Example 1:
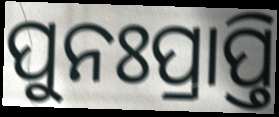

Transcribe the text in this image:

ପୁନଃପ୍ରାପ୍ତି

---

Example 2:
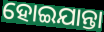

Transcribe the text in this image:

ହୋଇଯାନ୍ତା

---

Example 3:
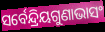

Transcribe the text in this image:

ସର୍ବେନ୍ଦ୍ରିୟଗୁଣାଭାସଂ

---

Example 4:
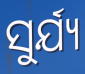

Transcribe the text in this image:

ସୁର୍ଯ୍ୟ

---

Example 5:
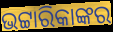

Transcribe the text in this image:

ଭଟ୍ଟାରିକାଙ୍କର